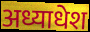
अध्याधेश